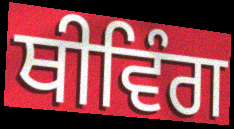
ਥੀਵਿੰਗ